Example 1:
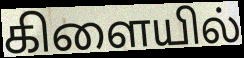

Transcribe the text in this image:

கிளையில்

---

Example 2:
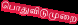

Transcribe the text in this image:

பொதுவிடுமுறை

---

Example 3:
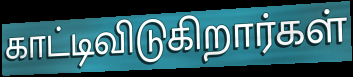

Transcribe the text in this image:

காட்டிவிடுகிறார்கள்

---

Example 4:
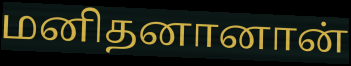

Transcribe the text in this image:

மனிதனானான்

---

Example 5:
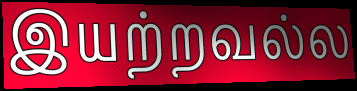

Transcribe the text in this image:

இயற்றவல்ல